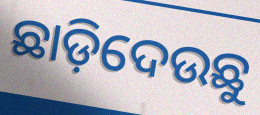
ଛାଡ଼ିଦେଉଛୁ